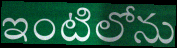
ఇంటిలోను